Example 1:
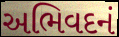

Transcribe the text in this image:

અભિવદનં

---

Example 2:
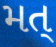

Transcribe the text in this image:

મત્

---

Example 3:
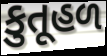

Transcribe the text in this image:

કુતૂહળ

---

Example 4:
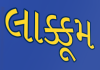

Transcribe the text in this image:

લાક્કૂમ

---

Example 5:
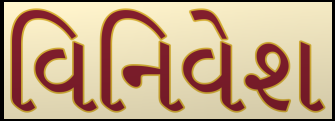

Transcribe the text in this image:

વિનિવેશ